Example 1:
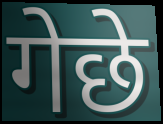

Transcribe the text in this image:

गेछे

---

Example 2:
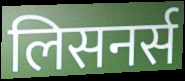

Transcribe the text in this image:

लिसनर्स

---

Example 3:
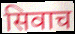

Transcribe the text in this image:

सिवाच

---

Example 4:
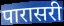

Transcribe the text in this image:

पारासरी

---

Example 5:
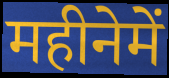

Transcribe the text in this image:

महीनेमें